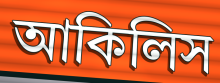
আকিলিস